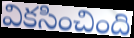
వికసించింది